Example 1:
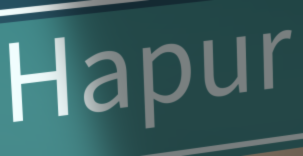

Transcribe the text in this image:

Hapur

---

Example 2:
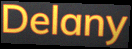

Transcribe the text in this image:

Delany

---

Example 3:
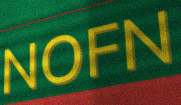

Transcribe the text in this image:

NOFN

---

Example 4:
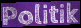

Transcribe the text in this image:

Politik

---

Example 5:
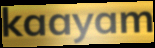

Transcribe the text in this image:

kaayam